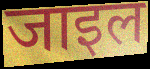
जाइल